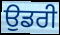
ਉਡਰੀ